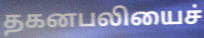
தகனபலியைச்